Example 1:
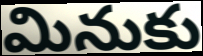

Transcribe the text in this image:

మినుకు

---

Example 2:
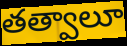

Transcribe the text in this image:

తత్వాలూ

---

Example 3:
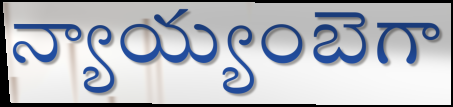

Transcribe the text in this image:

న్యాయ్యంబెగా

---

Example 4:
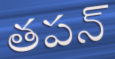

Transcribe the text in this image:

తపన్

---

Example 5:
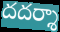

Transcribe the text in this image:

దదర్శా